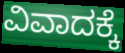
ವಿವಾದಕ್ಕೆ